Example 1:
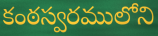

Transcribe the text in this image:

కంఠస్వరములోని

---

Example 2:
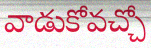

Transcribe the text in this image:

వాడుకోవచ్చో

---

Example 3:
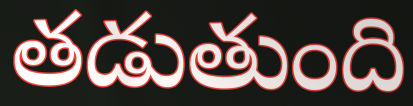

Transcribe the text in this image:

తడుతుంది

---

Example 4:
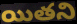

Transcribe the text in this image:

యితని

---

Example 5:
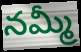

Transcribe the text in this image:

నమ్మీ